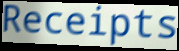
Receipts